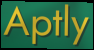
Aptly